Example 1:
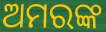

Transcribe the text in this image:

ଅମରଙ୍କ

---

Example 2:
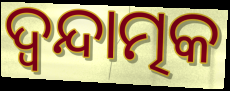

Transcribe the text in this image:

ଦ୍ୱନ୍ଦାତ୍ମକ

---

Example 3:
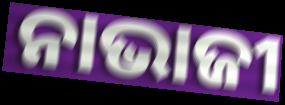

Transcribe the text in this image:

ନାଭାଜୀ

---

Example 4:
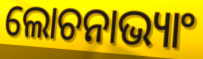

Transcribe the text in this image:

ଲୋଚନାଭ୍ୟାଂ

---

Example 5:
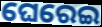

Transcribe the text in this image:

ଘେରେଇ